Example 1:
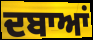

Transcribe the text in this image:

ਦਬਾਆਂ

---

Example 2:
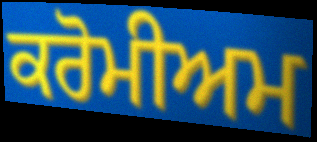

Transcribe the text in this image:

ਕਰੋਮੀਅਮ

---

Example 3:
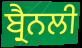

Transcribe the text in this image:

ਬ੍ਰੈਨਲੀ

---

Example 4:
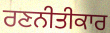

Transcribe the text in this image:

ਰਣਨੀਤੀਕਾਰ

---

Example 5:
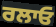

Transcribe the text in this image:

ਰਲਾਓ